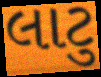
લાટુ